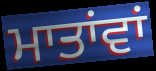
ਮਾਤਾਂਵਾਂ